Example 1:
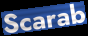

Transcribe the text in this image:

Scarab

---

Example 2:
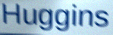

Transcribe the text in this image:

Huggins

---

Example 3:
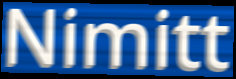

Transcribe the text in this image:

Nimitt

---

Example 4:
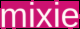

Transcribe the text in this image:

mixie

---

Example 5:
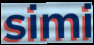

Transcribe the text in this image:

simi